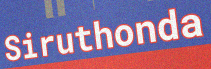
Siruthonda